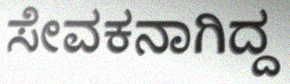
ಸೇವಕನಾಗಿದ್ದ